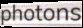
photons